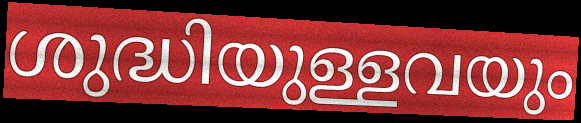
ശുദ്ധിയുള്ളവയും